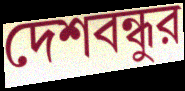
দেশবন্ধুর